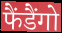
फैंडैंगो